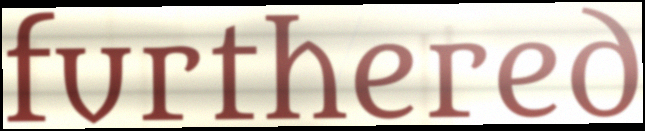
furthered